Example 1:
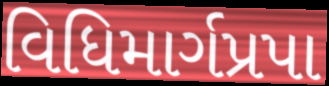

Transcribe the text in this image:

વિધિમાર્ગપ્રપા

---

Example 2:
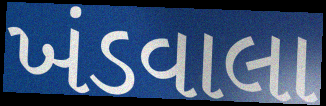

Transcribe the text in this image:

ખંડવાલા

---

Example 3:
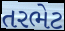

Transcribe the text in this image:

તરભેટ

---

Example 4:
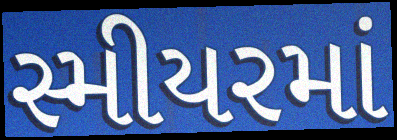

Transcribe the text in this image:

સ્મીયરમાં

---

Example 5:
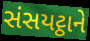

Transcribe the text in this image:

સંસયટ્ઠાને